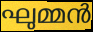
ഘുമ്മൻ